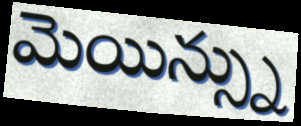
మెయిన్స్ను